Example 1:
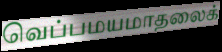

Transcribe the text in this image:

வெப்பமயமாதலைக்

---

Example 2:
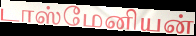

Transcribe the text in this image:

டாஸ்மேனியன்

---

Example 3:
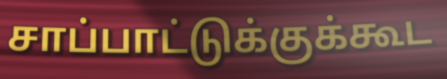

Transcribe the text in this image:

சாப்பாட்டுக்குக்கூட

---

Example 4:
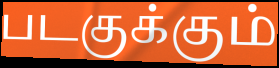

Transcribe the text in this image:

படகுக்கும்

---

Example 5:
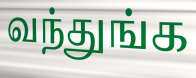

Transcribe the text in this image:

வந்துங்க